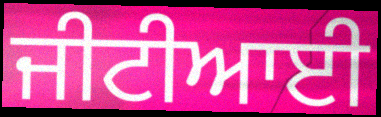
ਜੀਟੀਆਈ